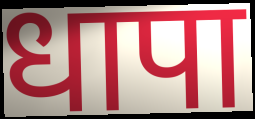
धापा